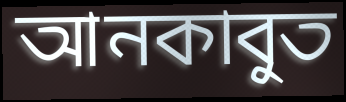
আনকাবুত